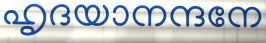
ഹൃദയാനന്ദനേ